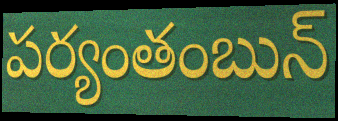
పర్యంతంబున్